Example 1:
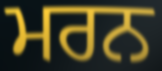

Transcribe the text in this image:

ਮਰਨ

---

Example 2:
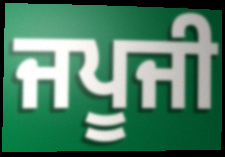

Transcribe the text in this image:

ਜਪੂਜੀ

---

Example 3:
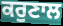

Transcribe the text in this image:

ਕਰੁਣਾਲ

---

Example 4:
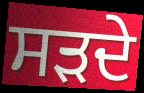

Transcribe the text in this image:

ਸੜਦੇ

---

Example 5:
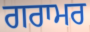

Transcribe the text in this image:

ਗਰਾਮਰ